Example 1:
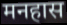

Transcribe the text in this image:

मनहास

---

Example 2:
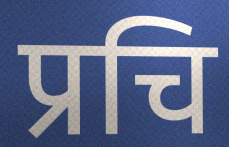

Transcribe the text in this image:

प्रचि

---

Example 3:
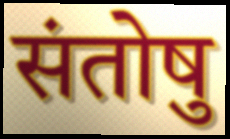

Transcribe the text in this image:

संतोषु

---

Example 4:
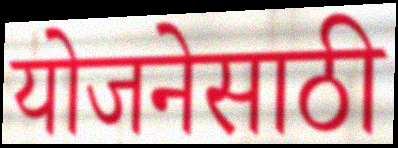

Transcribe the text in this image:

योजनेसाठी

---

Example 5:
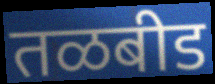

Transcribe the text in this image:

तळबीड